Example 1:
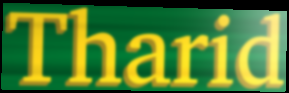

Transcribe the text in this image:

Tharid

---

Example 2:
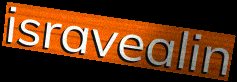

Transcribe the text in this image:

isravealin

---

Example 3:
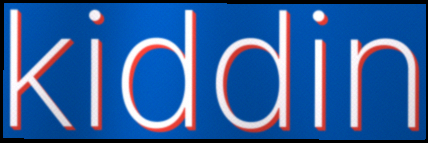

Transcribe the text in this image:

kiddin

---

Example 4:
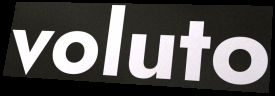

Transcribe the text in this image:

voluto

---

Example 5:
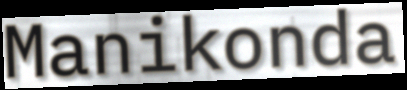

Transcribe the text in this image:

Manikonda